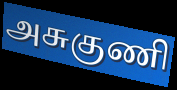
அசுகுணி